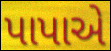
પાપાએ